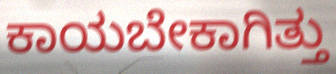
ಕಾಯಬೇಕಾಗಿತ್ತು